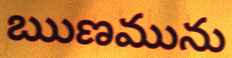
ఋణమును